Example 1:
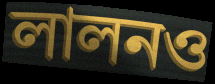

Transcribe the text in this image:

লালনও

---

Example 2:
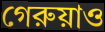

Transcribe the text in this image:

গেরুয়াও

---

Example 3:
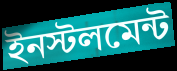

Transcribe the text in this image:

ইনস্টলমেন্ট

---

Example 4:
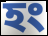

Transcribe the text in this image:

হং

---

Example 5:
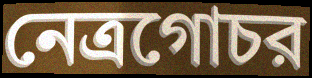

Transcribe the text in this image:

নেত্রগোচর